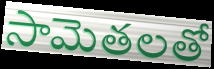
సామెతలతో